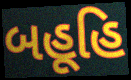
બહૂહિ